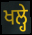
ਖਲ੍ਹੇ